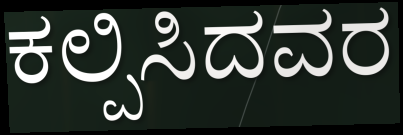
ಕಲ್ಪಿಸಿದವರ